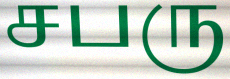
சபரு